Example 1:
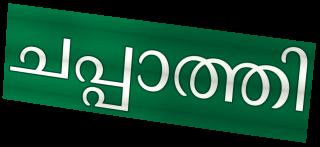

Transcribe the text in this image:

ചപ്പാത്തി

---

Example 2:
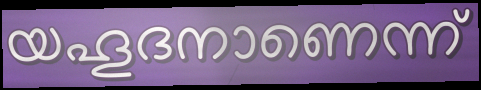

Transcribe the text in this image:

യഹൂദനാണെന്ന്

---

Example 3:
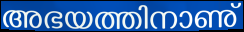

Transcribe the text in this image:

അഭയത്തിനാണു്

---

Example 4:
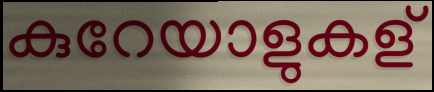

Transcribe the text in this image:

കുറേയാളുകള്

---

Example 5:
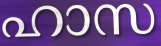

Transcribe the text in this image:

ഹാസ